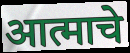
आत्माचे